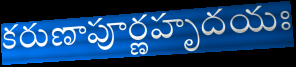
కరుణాపూర్ణహృదయః